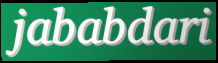
jababdari